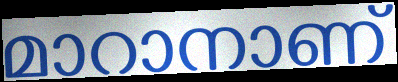
മാറാനാണ്